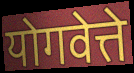
योगवेत्ते